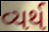
વ્યર્થ